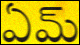
ఏమ్